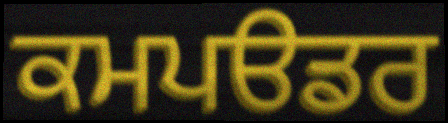
ਕਮਪੳਡਰ